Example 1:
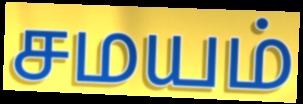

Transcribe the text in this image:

சமயம்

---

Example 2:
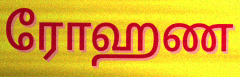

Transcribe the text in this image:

ரோஹண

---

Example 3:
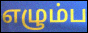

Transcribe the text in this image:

எழும்ப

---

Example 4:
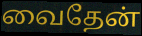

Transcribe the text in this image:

வைதேன்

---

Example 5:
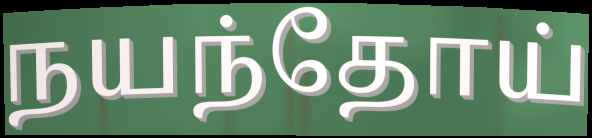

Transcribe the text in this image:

நயந்தோய்